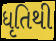
ધૃતિથી